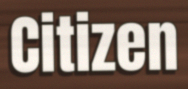
Citizen